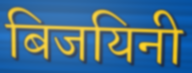
बिजयिनी